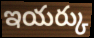
ఇయర్కు